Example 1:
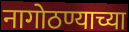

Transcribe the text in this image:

नागोठण्याच्या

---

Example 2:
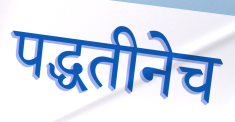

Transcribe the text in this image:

पद्धतीनेच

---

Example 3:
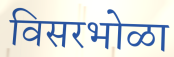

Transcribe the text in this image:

विसरभोळा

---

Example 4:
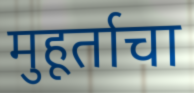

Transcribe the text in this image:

मुहूर्ताचा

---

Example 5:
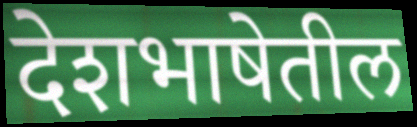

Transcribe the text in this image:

देशभाषेतील